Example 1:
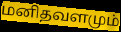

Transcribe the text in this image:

மனிதவளமும்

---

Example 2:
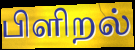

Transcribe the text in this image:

பிளிறல்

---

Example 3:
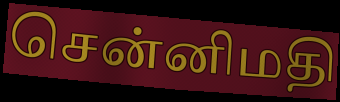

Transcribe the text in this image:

சென்னிமதி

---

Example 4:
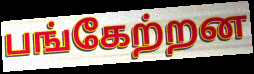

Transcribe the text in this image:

பங்கேற்றன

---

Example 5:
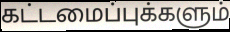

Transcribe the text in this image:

கட்டமைப்புக்களும்